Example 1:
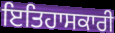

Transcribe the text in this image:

ਇਤਿਹਾਸਕਾਰੀ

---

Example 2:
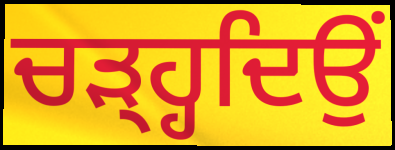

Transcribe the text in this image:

ਚੜ੍ਹ੍ਹਦਿਉਂ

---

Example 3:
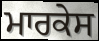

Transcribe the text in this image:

ਮਾਰਕੇਸ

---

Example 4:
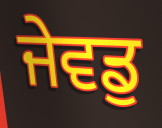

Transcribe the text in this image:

ਜੇਵਡੁ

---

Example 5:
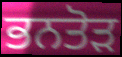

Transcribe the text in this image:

ਭਨਤੋੜ